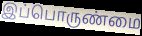
இப்பொருண்மை